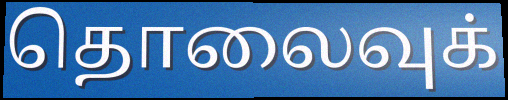
தொலைவுக்